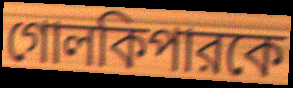
গোলকিপারকে